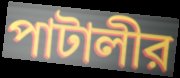
পাটালীর